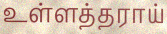
உள்ளத்தராய்